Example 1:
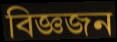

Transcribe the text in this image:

বিজ্ঞজন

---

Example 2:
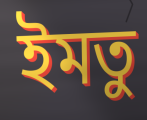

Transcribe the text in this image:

ইমতু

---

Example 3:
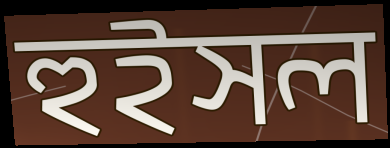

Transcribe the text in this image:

হুইসল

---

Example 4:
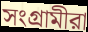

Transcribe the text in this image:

সংগ্রামীরা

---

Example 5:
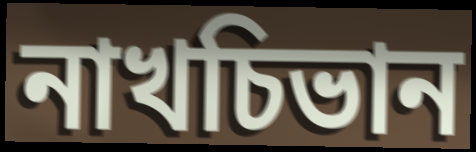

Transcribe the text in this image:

নাখচিভান